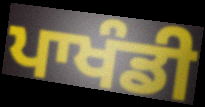
ਪਾਖੰਡੀ